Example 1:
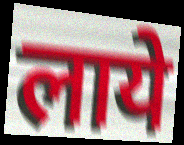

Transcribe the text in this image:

लाये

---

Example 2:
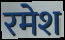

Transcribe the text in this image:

रमेश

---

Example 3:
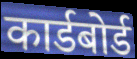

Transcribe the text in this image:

कार्डबोर्ड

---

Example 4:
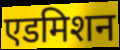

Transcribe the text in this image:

एडमिशन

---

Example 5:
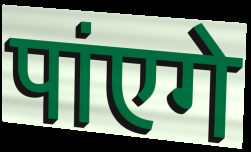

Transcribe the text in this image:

पांएगे